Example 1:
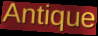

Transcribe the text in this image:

Antique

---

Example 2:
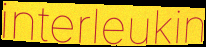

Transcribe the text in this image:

interleukin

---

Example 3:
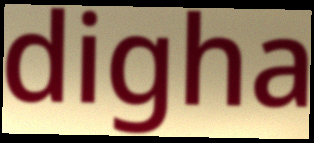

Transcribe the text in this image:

digha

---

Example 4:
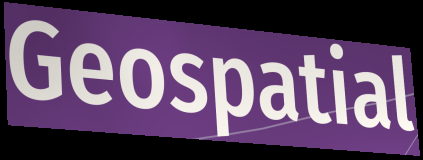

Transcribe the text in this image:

Geospatial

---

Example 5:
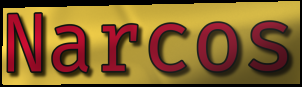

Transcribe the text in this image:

Narcos